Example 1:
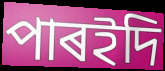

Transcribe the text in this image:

পাৰইদি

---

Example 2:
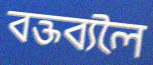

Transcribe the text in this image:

বক্তব্যলৈ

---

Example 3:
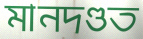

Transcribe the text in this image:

মানদণ্ডত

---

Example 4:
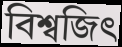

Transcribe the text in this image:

বিশ্বজিৎ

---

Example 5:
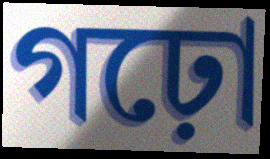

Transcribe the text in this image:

গঢ়ো